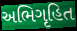
અભિગૃહિત